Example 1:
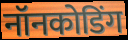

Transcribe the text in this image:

नॉनकोडिंग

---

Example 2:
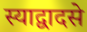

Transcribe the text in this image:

स्याद्वादसे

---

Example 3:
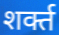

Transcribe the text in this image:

शर्क्त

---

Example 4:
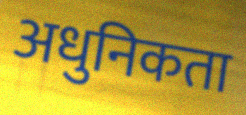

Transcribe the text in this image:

अधुनिकता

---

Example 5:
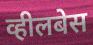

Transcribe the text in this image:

व्हीलबेस